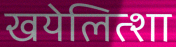
खयेलित्शा